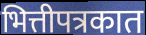
भित्तीपत्रकात